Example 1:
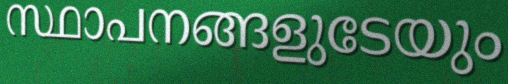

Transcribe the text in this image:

സ്ഥാപനങ്ങളുടേയും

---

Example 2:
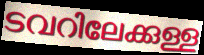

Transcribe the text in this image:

ടവറിലേക്കുള്ള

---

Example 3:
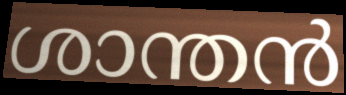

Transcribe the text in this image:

ശാന്തൻ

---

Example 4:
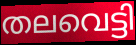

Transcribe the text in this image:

തലവെട്ടി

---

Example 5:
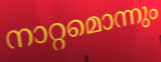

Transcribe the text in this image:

നാറ്റമൊന്നും